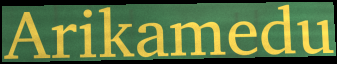
Arikamedu